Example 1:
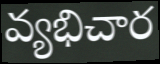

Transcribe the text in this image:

వ్యభిచార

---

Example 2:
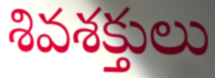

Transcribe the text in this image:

శివశక్తులు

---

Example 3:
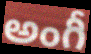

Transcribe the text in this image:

అంగీ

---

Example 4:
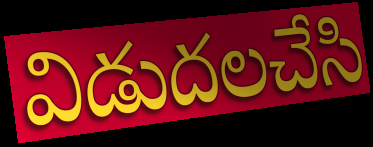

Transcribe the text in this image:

విడుదలచేసి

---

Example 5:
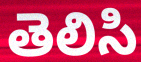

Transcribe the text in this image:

తెలిసి